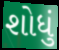
શોધું